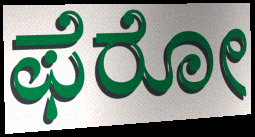
ಫೆರೋ